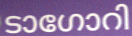
ടാഗോറി